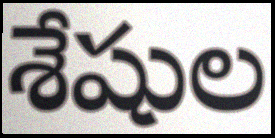
శేషుల